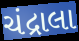
ચંદ્રાલા